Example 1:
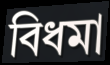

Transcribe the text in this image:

বিধমা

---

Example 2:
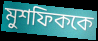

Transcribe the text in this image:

মুশফিককে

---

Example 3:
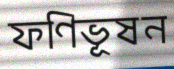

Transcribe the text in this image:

ফণিভূষন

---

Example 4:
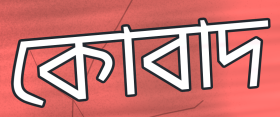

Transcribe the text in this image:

কোবাদ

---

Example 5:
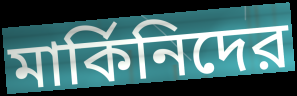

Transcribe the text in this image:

মার্কিনিদের